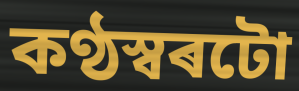
কণ্ঠস্বৰটো